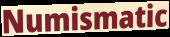
Numismatic